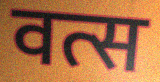
वत्स